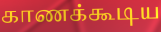
காணக்கூடிய